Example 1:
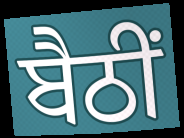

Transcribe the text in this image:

ਬੈਠੀਂ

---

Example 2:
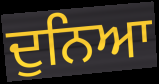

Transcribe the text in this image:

ਦੁਨਿਆ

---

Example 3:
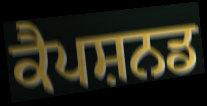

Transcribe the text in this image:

ਕੈਪਸ਼ਨਡ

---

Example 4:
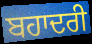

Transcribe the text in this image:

ਬਹਾਦਰੀ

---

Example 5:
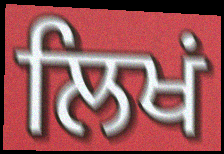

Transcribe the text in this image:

ਲਿਖਂ